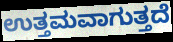
ಉತ್ತಮವಾಗುತ್ತದೆ